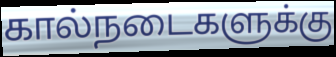
கால்நடைகளுக்கு